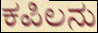
ಕಪಿಲನು